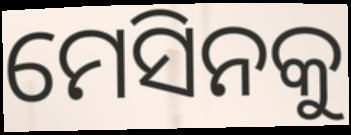
ମେସିନକୁ